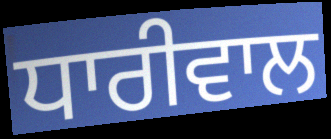
ਧਾਰੀਵਾਲ